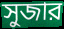
সুজার